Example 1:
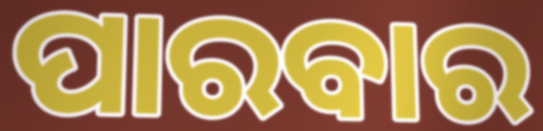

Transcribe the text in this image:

ପାରବାର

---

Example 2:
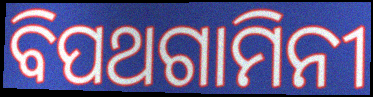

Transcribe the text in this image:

ବିପଥଗାମିନୀ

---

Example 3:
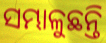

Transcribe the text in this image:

ସମ୍ଭାଳୁଛନ୍ତି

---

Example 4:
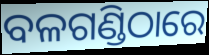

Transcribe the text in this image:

ବଳଗଣ୍ଡିଠାରେ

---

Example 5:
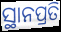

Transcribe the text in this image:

ସ୍ଥାନପ୍ରତି